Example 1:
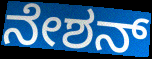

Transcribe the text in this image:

ನೇಶನ್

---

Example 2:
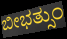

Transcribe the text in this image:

ಬೀಭತ್ಸುಂ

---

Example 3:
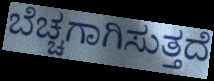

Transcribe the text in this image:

ಬೆಚ್ಚಗಾಗಿಸುತ್ತದೆ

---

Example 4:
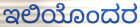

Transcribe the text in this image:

ಇಲಿಯೊಂದರ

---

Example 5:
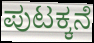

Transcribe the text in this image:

ಪುಟಕ್ಕನೆ